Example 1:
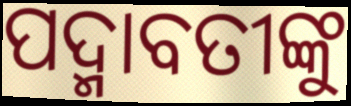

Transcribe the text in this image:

ପଦ୍ମାବତୀଙ୍କୁ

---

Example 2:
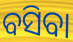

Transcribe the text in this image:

ବସିବା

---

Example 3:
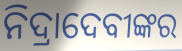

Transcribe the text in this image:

ନିଦ୍ରାଦେବୀଙ୍କର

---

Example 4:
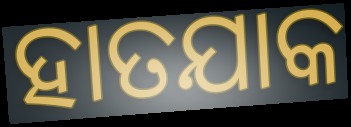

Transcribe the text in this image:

ହାତଯାକ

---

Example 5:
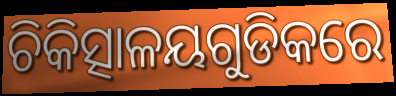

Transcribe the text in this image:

ଚିକିତ୍ସାଳୟଗୁଡିକରେ